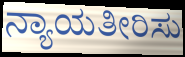
ನ್ಯಾಯತೀರಿಸು